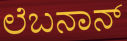
ಲೆಬನಾನ್